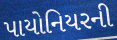
પાયોનિયરની